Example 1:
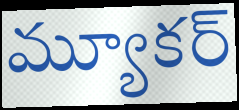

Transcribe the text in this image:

మ్యూకర్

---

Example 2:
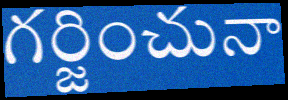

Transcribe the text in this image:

గర్జించునా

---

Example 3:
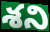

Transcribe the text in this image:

శని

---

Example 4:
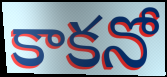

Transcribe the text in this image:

కాకనో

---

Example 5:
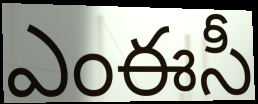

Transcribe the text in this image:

ఎంఈసీ